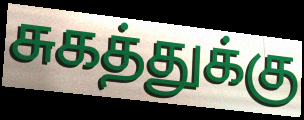
சுகத்துக்கு